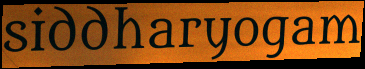
siddharyogam